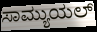
ಸಾಮ್ಯುಯಲ್